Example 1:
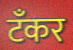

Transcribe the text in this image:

टॅँकर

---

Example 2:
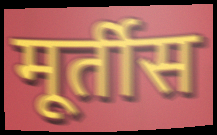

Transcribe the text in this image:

मूर्तीस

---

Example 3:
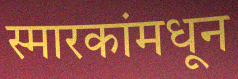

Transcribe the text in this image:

स्मारकांमधून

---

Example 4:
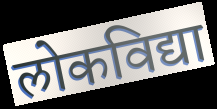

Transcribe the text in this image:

लोकविद्या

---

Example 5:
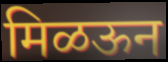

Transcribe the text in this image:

मिळऊन